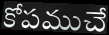
కోపముచే